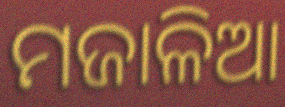
ମଜାଳିଆ